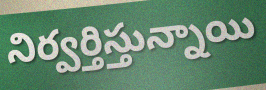
నిర్వర్తిస్తున్నాయి